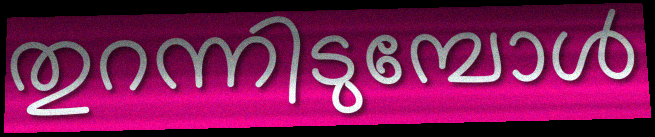
തുറന്നിടുമ്പോൾ